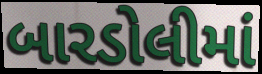
બારડોલીમાં